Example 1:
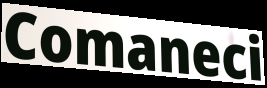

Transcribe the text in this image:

Comaneci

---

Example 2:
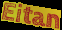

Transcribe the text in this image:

Eitan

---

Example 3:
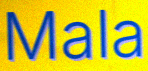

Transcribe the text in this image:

Mala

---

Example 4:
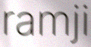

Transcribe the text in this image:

ramji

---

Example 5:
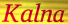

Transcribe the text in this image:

Kalna